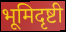
भूमिदृष्टी